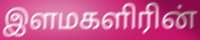
இளமகளிரின்